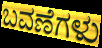
ಬವಣೆಗಳು